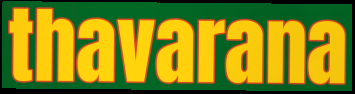
thavarana